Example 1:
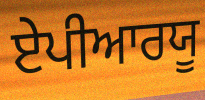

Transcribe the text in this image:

ਏਪੀਆਰਯੂ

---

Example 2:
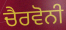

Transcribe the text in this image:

ਚੈਰਵੋਨੀ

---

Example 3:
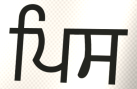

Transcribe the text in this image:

ਪਿਸ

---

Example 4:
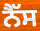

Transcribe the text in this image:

ਨੈੱਸ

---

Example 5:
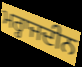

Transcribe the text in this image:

ਮਰ੍ਹਾਜਦੀਨ